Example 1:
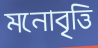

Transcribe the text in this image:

মনোবৃত্তি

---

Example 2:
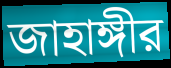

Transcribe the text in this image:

জাহাঙ্গীর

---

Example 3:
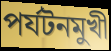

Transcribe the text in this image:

পর্যটনমুখী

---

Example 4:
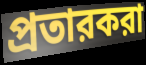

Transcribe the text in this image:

প্রতারকরা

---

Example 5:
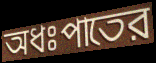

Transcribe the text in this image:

অধঃপাতের